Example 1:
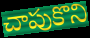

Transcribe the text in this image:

చాపుకొని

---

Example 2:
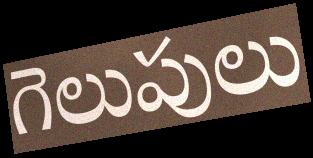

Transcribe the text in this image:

గెలుపులు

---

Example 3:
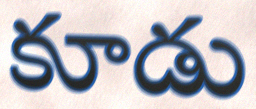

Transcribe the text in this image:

కూడు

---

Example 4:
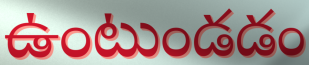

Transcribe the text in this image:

ఉంటుండడం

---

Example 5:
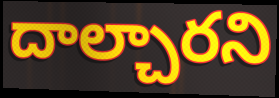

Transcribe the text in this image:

దాల్చారని